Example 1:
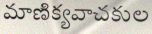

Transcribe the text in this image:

మాణిక్యవాచకుల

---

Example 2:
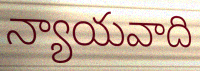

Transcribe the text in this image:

న్యాయవాది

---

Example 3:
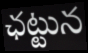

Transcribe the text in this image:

ఛట్టున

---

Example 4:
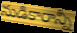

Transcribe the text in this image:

నుడికారాన్నీ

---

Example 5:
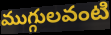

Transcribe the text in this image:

ముగ్గులవంటి